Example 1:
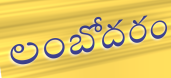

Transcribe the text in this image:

లంబోదరం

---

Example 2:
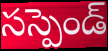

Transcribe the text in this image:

సస్పెండ్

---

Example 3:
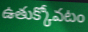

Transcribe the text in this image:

ఉతుక్కోవటం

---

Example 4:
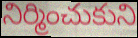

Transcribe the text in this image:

నిర్మించుకుని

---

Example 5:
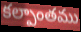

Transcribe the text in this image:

కల్పాంతము